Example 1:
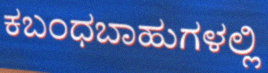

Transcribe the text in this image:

ಕಬಂಧಬಾಹುಗಳಲ್ಲಿ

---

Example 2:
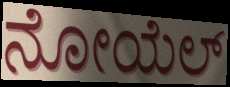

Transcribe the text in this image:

ನೋಯೆಲ್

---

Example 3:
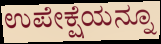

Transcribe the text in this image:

ಉಪೇಕ್ಷೆಯನ್ನೂ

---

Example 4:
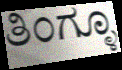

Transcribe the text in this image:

ತಿಂಗ್ಳೂ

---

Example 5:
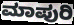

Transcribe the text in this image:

ಮಾಪುರಿ